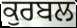
ਕੁਰਬਲ